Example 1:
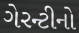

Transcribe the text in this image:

ગેરન્ટીનો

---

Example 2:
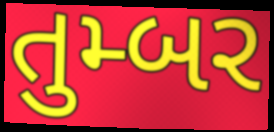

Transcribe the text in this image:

તુમ્બર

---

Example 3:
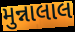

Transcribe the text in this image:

મુન્નાલાલ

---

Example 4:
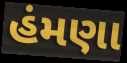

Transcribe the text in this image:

હંમણા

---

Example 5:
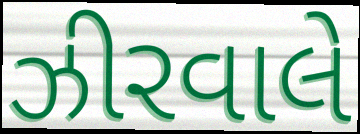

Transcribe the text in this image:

ઝીરવાલે